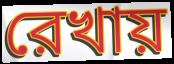
রেখায়